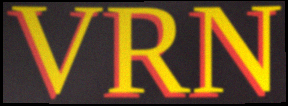
VRN